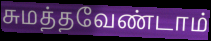
சுமத்தவேண்டாம்